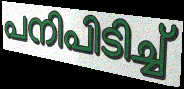
പനിപിടിച്ച്